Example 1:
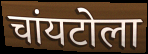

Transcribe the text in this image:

चांयटोला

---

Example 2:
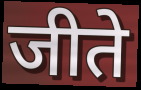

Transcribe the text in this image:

जीते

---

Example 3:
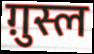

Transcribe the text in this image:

ग़ुस्ल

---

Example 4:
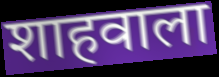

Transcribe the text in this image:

शाहवाला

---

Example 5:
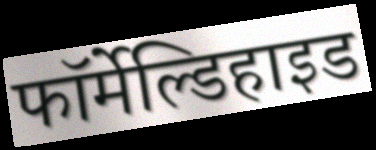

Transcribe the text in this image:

फॉर्मेल्डिहाइड